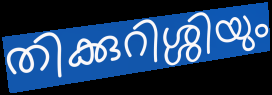
തിക്കുറിശ്ശിയും